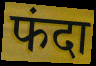
फंदा